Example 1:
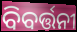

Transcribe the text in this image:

ବିବର୍ତ୍ତନୀ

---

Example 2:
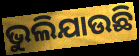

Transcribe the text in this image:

ଭୁଲିଯାଉଛି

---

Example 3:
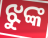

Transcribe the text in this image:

ଝୁଙ୍କ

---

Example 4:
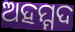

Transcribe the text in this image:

ଅହମ୍ମଦ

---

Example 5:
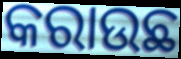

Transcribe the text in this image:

କରାଉଛ